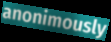
anonimously